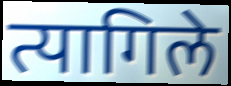
त्यागिले